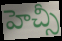
హెచ్సీ